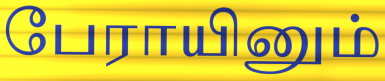
பேராயினும்